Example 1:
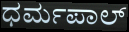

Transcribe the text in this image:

ಧರ್ಮಪಾಲ್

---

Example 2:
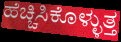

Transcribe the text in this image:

ಹೆಚ್ಚಿಸಿಕೊಳ್ಳುತ್ತ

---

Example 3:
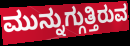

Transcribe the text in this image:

ಮುನ್ನುಗ್ಗುತ್ತಿರುವ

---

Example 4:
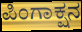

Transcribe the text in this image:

ಪಿಂಗಾಕ್ಷನ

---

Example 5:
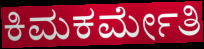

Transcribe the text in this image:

ಕಿಮಕರ್ಮೇತಿ